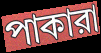
পাকারা